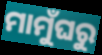
ମାମୁଁଘରୁ